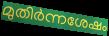
മുതിർന്നശേഷം